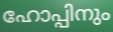
ഹോപ്പിനും